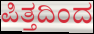
ಪಿತ್ತದಿಂದ